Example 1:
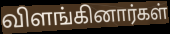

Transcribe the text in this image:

விளங்கினார்கள்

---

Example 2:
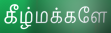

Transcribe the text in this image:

கீழ்மக்களே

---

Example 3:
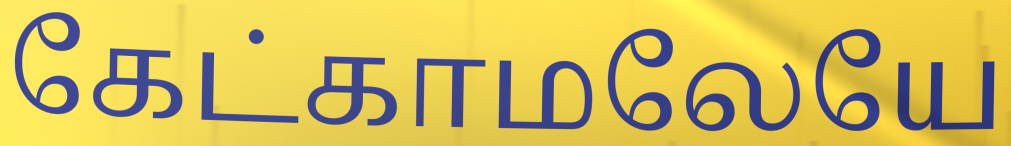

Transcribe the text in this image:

கேட்காமலேயே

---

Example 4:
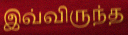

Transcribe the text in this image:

இவ்விருந்த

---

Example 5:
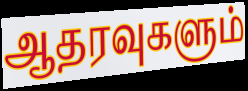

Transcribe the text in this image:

ஆதரவுகளும்